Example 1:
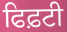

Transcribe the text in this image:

ਫਿਫ਼ਟੀ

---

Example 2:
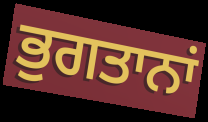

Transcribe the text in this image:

ਭੁਗਤਾਨਾਂ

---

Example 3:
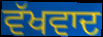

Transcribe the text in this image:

ਵੱਖਵਾਦ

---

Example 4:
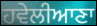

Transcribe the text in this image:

ਹਵੇਲੀਆਣਾ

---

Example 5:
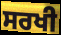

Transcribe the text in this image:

ਸਰਖੀ